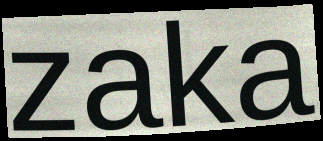
zaka